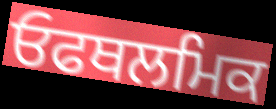
ਓਫਥਲਮਿਕ